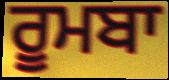
ਰੂਮਬਾ